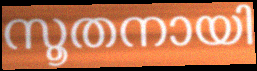
സൂതനായി